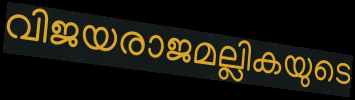
വിജയരാജമല്ലികയുടെ